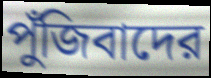
পুঁজিবাদের